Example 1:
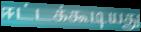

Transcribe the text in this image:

ஈட்டக்கூடியது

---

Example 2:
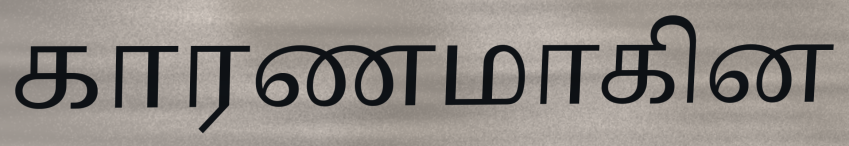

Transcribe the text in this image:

காரணமாகின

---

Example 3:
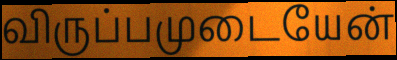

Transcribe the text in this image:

விருப்பமுடையேன்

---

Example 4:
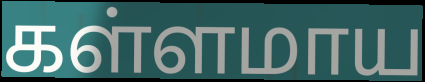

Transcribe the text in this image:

கள்ளமாய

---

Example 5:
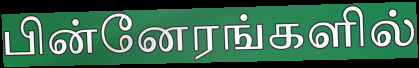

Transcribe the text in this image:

பின்னேரங்களில்